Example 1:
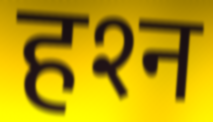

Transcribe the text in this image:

हश्न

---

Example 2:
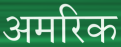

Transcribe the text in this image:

अमरिक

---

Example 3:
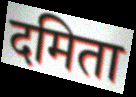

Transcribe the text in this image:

दमिता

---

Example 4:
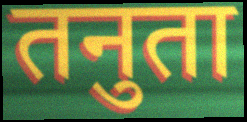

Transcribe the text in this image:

तनुता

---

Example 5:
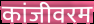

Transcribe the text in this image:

कांजीवरम